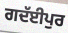
ਗਦੱਈਪੁਰ